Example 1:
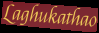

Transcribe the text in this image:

Laghukathao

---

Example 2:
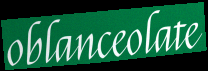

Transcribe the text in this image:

oblanceolate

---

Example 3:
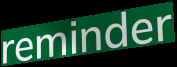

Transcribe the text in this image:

reminder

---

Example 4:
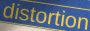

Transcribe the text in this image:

distortion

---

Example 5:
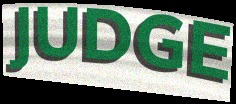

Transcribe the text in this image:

JUDGE